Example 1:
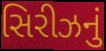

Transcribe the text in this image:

સિરીઝનું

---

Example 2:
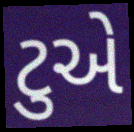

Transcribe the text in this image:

ટુએ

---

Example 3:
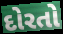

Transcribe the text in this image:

દોરતો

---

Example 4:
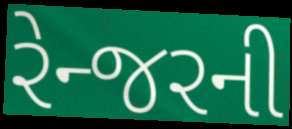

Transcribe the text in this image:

રેન્જરની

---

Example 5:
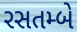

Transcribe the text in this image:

રસતમ્બે